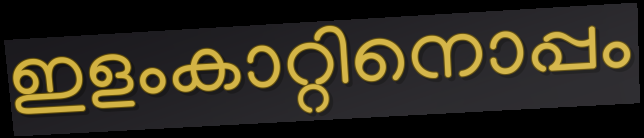
ഇളംകാറ്റിനൊപ്പം